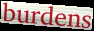
burdens